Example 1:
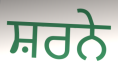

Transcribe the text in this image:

ਸ਼ਰਨੇ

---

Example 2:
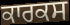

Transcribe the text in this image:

ਕਾਰਕਸ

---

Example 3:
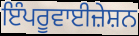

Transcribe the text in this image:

ਇੰਪਰੂਵਾਈਜ਼ੇਸ਼ਨ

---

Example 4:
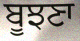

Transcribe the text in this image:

ਬੂਝਣਾ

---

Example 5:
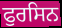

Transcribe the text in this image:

ਫੁਰਸਿਨ